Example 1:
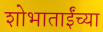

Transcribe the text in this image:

शोभाताईंच्या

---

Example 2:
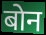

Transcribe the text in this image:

बोन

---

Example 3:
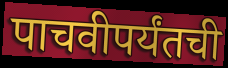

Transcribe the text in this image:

पाचवीपर्यंतची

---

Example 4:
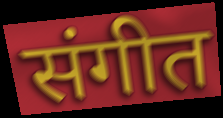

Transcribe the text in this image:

संगीत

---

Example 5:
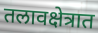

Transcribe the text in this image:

तलावक्षेत्रात